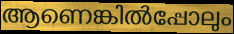
ആണെങ്കിൽപ്പോലും